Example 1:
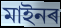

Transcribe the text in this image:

মাইনৰ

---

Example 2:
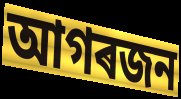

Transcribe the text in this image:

আগৰজন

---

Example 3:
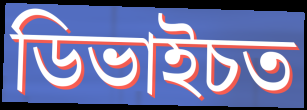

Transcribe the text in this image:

ডিভাইচত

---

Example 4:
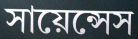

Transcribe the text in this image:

সায়েন্সেস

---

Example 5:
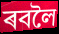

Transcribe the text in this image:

ৰবলৈ